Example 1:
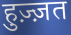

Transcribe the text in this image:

हुज़्ज़त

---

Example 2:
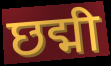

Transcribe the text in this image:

छद्मी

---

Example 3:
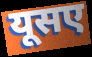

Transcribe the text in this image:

यूसए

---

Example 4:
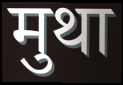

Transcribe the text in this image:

मुथा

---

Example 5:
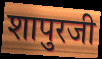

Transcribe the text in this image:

शापुरजी